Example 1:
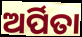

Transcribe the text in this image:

ଅର୍ପିତା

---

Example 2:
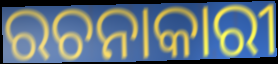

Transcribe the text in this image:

ରଚନାକାରୀ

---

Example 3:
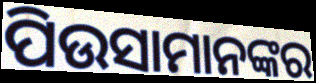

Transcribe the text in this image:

ପିଉସାମାନଙ୍କର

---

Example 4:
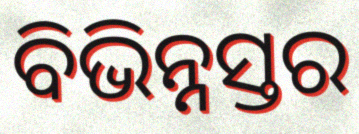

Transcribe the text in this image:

ବିଭିନ୍ନସ୍ତର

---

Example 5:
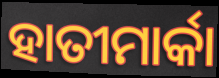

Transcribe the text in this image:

ହାତୀମାର୍କା